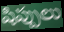
షిప్పులు